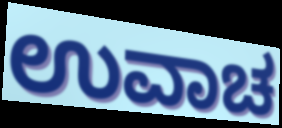
ಉವಾಚ